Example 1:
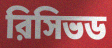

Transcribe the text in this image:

রিসিভড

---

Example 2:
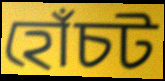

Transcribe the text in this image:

হোঁচট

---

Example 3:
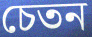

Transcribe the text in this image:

চেতন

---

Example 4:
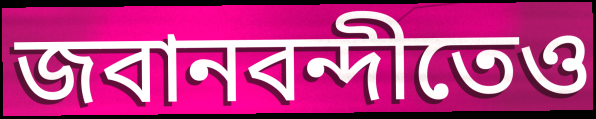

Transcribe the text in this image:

জবানবন্দীতেও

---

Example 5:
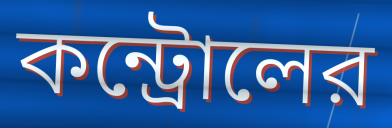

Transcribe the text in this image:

কন্ট্রোলের